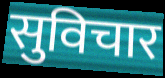
सुविचार